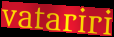
vatariri